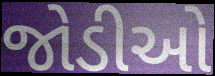
જોડીઓ